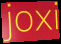
joxi